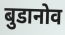
बुडानोव